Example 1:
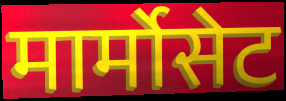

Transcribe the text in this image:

मार्मोसेट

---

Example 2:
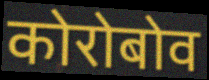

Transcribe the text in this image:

कोरोबोव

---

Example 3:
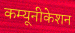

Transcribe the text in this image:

कम्यूनीकेशन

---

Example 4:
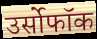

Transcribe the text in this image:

उर्सोफॉक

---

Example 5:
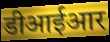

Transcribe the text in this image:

डीआईआर